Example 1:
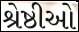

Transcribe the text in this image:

શ્રેષ્ઠીઓ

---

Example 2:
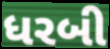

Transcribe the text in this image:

ધરબી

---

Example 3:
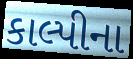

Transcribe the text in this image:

કાલ્પીના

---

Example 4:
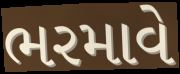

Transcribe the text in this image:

ભરમાવે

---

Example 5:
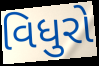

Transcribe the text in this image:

વિધુરો